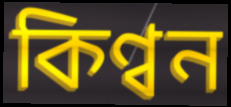
কিণ্বন